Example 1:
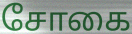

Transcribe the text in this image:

சோகை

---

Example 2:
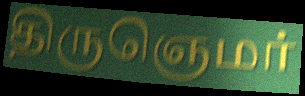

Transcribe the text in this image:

திருஞெமர்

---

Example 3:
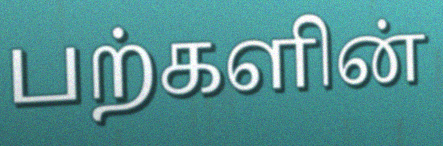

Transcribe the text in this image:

பற்களின்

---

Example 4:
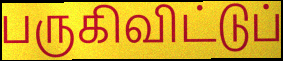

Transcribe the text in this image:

பருகிவிட்டுப்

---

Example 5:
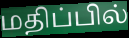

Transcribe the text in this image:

மதிப்பில்